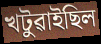
খটুৱাইছিল